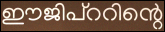
ഈജിപ്ററിന്റെ